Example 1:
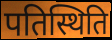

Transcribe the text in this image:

पतिस्थिति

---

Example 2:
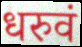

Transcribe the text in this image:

धरुवं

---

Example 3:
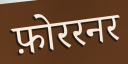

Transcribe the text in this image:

फ़ोररनर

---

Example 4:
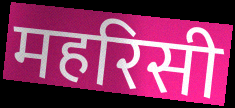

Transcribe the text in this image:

महरिसी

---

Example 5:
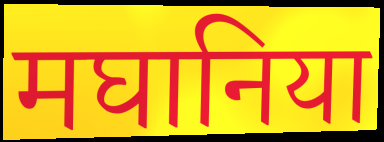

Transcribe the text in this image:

मघानिया